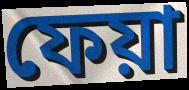
ফেয়া